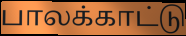
பாலக்காட்டு